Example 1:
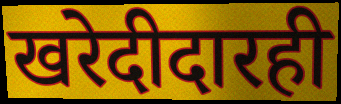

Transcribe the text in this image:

खरेदीदारही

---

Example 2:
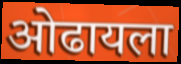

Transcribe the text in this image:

ओढायला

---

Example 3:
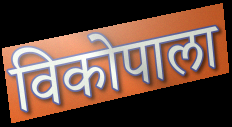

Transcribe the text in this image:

विकोपाला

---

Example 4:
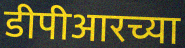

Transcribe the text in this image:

डीपीआरच्या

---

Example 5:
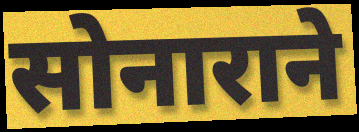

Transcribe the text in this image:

सोनाराने